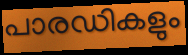
പാരഡികളും